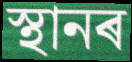
স্থানৰ